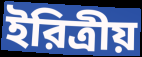
ইরিত্রীয়